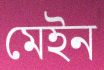
মেইন